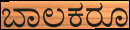
ಬಾಲಕರೂ